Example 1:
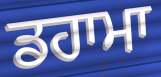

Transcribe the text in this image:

ਡਹਾਮਾ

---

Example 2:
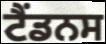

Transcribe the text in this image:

ਟੈਂਡਨਸ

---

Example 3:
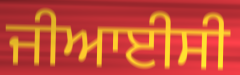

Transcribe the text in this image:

ਜੀਆਈਸੀ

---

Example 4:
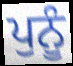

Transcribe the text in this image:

ਪੁਨੂੰ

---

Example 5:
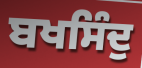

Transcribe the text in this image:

ਬਖਸਿੰਦੁ